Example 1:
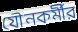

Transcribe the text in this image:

যৌনকর্মীর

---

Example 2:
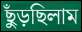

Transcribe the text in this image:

ছুঁড়ছিলাম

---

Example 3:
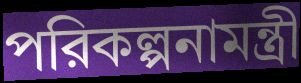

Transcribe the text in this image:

পরিকল্পনামন্ত্রী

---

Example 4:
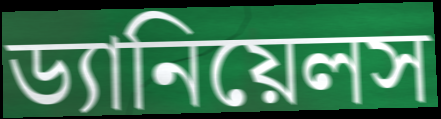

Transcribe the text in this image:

ড্যানিয়েলস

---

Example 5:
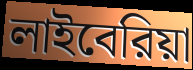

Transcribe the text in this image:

লাইবেরিয়া